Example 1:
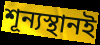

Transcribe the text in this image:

শূন্যস্থানই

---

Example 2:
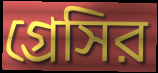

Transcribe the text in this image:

গ্রেসির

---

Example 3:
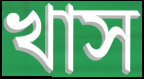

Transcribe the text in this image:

খাস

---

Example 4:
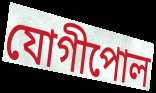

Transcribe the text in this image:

যোগীপোল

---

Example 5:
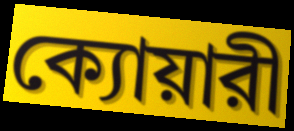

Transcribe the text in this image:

ক্যোয়ারী